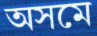
অসমে